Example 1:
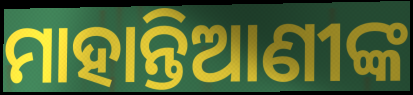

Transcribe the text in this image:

ମାହାନ୍ତିଆଣୀଙ୍କ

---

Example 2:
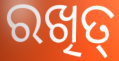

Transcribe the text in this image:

ରଖିତ୍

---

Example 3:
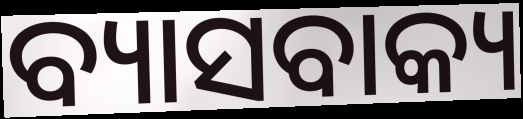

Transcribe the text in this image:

ବ୍ୟାସବାକ୍ୟ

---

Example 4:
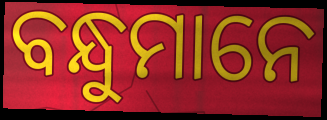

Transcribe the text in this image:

ବନ୍ଧୁମାନେ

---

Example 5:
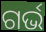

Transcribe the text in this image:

ଗର୍ଭ